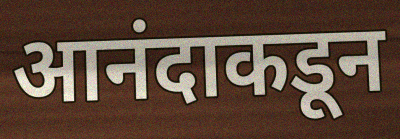
आनंदाकडून